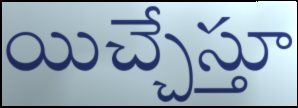
యిచ్చేస్తూ